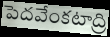
పెదవేంకటాద్రి